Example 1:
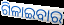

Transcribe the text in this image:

ଗିଳାଇବାର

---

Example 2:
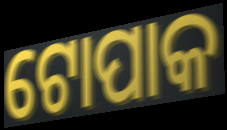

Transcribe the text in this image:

ଟୋପାକ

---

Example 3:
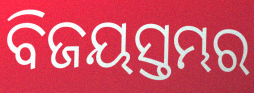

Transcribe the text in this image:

ବିଜୟସ୍ତମ୍ଭର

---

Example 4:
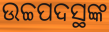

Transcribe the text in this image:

ଉଚ୍ଚପଦସ୍ଥଙ୍କ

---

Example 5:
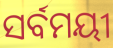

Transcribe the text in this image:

ସର୍ବମୟୀ